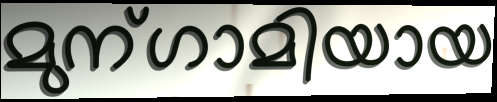
മുന്ഗാമിയായ